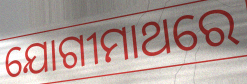
ଯୋଗୀମାଥରେ